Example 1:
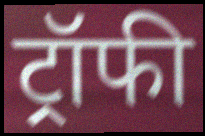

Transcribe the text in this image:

ट्रॉफी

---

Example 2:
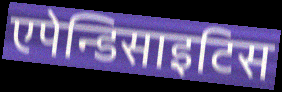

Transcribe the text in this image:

एपेन्डिसाइटिस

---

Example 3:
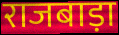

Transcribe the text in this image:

राजबाड़ा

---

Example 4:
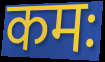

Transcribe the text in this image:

कमः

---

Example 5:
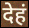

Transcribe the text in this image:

देहं